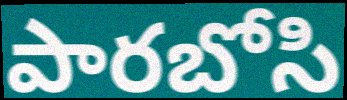
పారబోసి